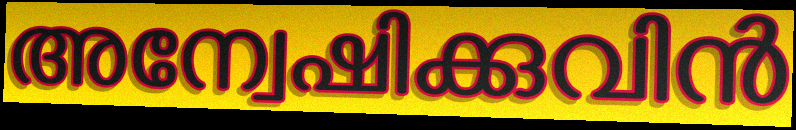
അന്വേഷിക്കുവിൻ